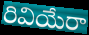
రివియేరా